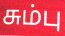
சும்பு